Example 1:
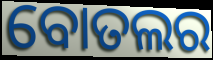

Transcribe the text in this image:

ବୋତଲର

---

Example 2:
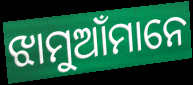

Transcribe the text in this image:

ଝାମୁଆଁମାନେ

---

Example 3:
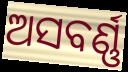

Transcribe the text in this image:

ଅସବର୍ଣ୍ଣ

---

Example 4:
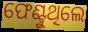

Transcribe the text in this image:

ଫେଣ୍ଟୁଥିଲେ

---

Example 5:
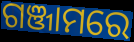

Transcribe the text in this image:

ଗଞ୍ଜାମରେ